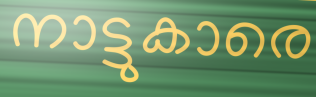
നാട്ടുകാരെ